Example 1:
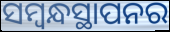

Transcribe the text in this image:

ସମ୍ବନ୍ଧସ୍ଥାପନର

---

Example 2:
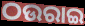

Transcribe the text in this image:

ଠଉରାଇ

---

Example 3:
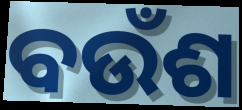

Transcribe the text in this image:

ବଉଁଶ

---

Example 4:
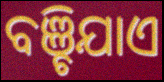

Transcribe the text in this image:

ବଞ୍ଚିଯାଏ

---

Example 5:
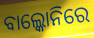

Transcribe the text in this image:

ବାଲ୍କୋନିରେ